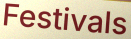
Festivals